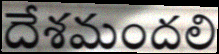
దేశమందలి